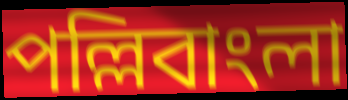
পল্লিবাংলা